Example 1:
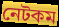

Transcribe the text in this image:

নেটকম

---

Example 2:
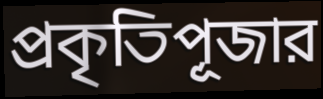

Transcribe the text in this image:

প্রকৃতিপূজার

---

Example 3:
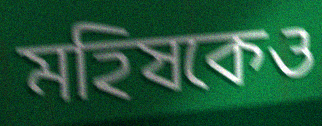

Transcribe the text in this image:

মহিষকেও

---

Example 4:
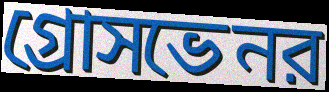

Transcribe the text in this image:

গ্রোসভেনর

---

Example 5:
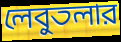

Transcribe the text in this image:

লেবুতলার